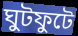
ঘুটফুটে